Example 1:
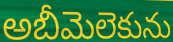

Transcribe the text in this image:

అబీమెలెకును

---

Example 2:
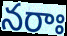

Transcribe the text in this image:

నరాః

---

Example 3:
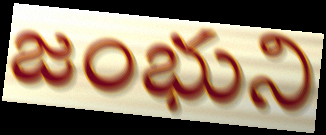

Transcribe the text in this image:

జంభుని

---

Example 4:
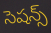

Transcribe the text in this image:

సెషన్స్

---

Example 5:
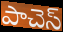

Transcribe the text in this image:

పాచెస్